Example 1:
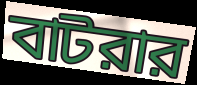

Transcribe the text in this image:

বাটরার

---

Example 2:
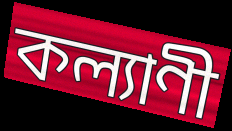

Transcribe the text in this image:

কল্যাণী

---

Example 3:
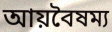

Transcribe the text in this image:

আয়বৈষম্য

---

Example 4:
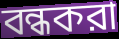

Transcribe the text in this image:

বন্ধকরা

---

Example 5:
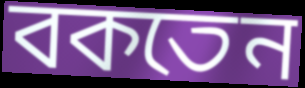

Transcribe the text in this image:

বকতেন